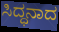
ಸಿದ್ಧನಾದ